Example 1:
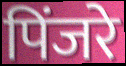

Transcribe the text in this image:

पिंजरे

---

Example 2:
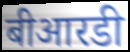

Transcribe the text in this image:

बीआरडी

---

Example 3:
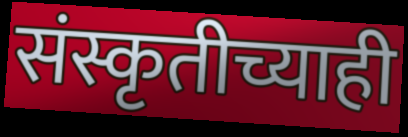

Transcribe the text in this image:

संस्कृतीच्याही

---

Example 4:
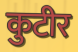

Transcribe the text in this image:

कुटीर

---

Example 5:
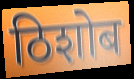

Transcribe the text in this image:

ठिशोब